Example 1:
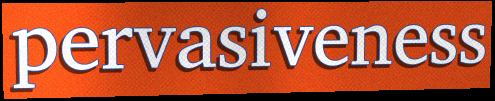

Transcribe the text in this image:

pervasiveness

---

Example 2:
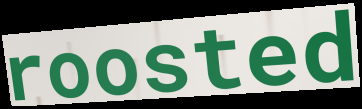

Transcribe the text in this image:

roosted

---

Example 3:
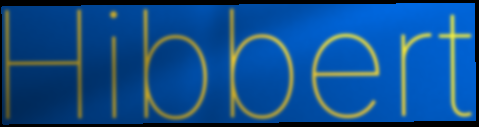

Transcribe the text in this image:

Hibbert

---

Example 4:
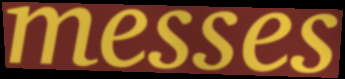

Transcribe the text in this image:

messes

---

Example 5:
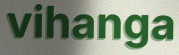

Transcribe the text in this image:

vihanga